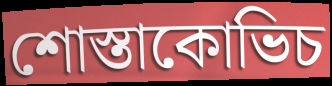
শোস্তাকোভিচ